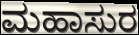
ಮಹಾಸುರ